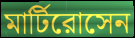
মার্টিরোসেন